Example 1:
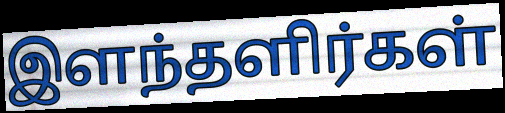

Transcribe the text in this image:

இளந்தளிர்கள்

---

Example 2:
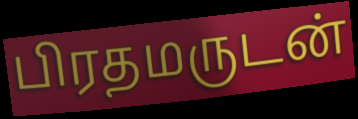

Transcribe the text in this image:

பிரதமருடன்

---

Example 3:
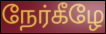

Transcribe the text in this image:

நேர்கீழே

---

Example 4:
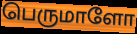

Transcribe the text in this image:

பெருமாளோ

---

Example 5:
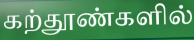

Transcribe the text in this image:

கற்தூண்களில்